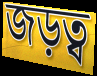
জড়ত্ব